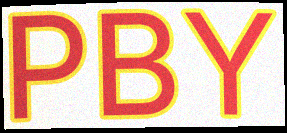
PBY